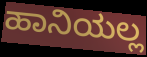
ಹಾನಿಯಲ್ಲ